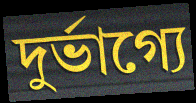
দুর্ভাগ্যে